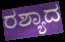
ರಶ್ಯಾದ